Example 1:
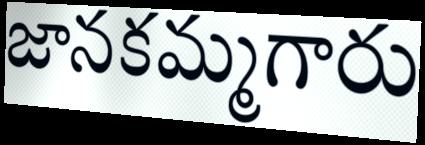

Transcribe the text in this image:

జానకమ్మగారు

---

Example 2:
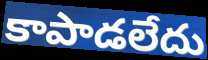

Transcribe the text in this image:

కాపాడలేదు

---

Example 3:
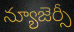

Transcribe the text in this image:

న్యూజెర్సీ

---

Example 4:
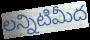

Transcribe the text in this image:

లన్నిటిమీద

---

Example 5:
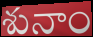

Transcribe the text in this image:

శునాం